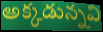
అక్కడున్నవి